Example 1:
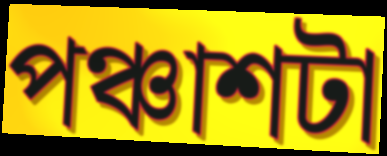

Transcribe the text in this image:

পঞ্চাশটা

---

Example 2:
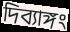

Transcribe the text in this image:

দিব্যাঙ্গং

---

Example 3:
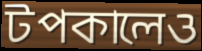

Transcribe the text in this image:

টপকালেও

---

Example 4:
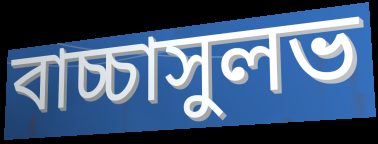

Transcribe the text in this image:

বাচ্চাসুলভ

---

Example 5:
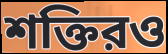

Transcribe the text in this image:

শক্তিরও